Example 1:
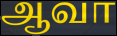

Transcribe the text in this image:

ஆவா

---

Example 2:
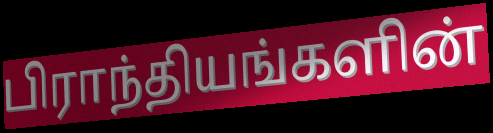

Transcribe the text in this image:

பிராந்தியங்களின்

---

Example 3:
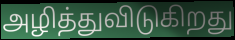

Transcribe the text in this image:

அழித்துவிடுகிறது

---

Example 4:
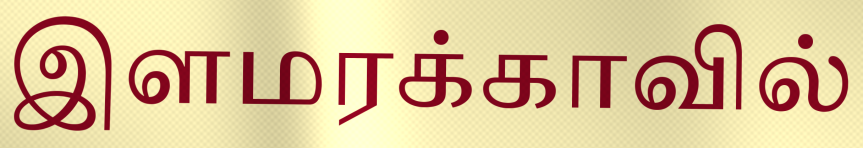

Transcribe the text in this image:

இளமரக்காவில்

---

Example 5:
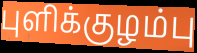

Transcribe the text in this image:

புளிக்குழம்பு